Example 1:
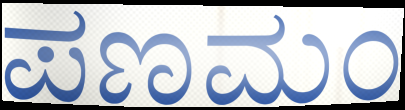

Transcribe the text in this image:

ಪಣಮಂ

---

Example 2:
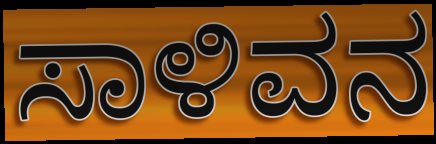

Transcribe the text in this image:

ಸಾಳಿವನ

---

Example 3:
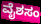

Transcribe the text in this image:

ವೈಶಸಂ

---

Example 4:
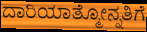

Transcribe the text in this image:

ದಾರಿಯಾತ್ಮೋನ್ನತಿಗೆ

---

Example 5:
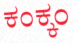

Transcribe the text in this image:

ಕಂಕ್ಕಂ